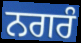
ਨਗਰੰ